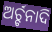
ଅର୍ଚ୍ଚନାଦି